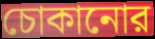
চোকানোর